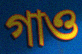
গাও